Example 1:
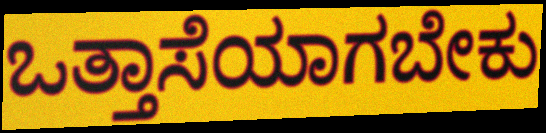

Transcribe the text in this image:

ಒತ್ತಾಸೆಯಾಗಬೇಕು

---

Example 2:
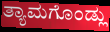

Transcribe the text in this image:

ತ್ಯಾಮಗೊಂಡ್ಲು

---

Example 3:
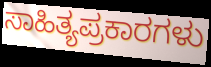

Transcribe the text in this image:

ಸಾಹಿತ್ಯಪ್ರಕಾರಗಳು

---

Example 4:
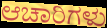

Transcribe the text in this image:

ಆಚಾರಿಗಳು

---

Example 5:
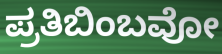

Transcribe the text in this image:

ಪ್ರತಿಬಿಂಬವೋ